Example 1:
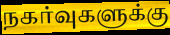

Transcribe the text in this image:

நகர்வுகளுக்கு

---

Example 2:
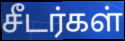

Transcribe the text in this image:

சீடர்கள்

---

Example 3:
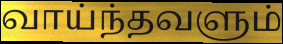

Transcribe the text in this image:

வாய்ந்தவளும்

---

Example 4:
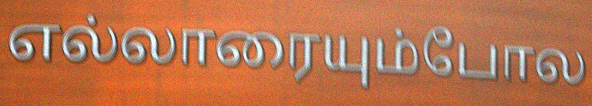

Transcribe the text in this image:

எல்லாரையும்போல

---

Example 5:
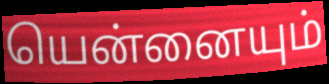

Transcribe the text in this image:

யென்னையும்